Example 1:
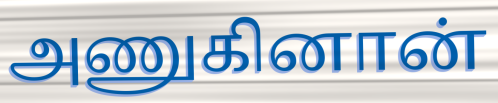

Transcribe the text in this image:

அணுகினான்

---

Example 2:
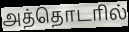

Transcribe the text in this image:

அத்தொடரில்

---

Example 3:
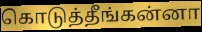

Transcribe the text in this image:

கொடுத்தீங்கன்னா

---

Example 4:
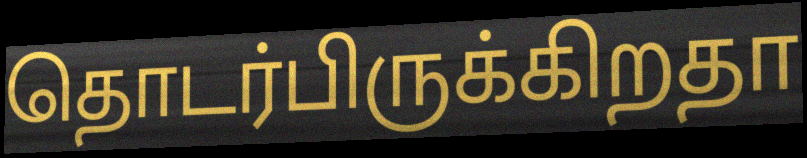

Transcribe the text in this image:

தொடர்பிருக்கிறதா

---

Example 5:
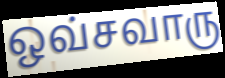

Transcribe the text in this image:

ஒவ்சவாரு